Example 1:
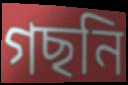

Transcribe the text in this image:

গছনি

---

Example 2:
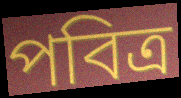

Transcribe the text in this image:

পবিত্ৰ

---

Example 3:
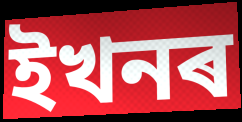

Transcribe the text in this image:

ইখনৰ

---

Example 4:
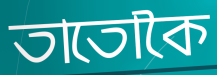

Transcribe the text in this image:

তাতোকৈ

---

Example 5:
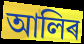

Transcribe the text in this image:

আলিৰ